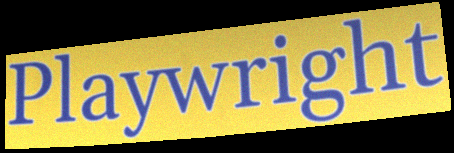
Playwright